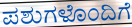
ಪಶುಗಳೊಂದಿಗೆ